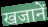
खजानें